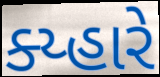
ક્ય્હારે